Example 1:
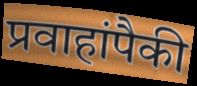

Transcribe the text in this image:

प्रवाहांपैकी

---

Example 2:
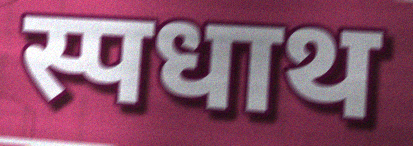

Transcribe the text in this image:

स्पधाथ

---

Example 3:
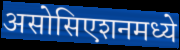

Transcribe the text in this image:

असोसिएशनमध्ये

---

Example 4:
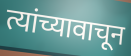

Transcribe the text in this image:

त्यांच्यावाचून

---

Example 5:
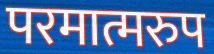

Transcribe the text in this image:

परमात्मरुप